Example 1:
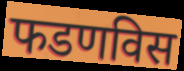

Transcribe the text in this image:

फडणविस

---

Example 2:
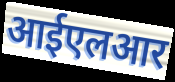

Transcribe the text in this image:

आईएलआर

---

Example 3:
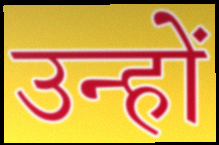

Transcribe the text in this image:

उन्हों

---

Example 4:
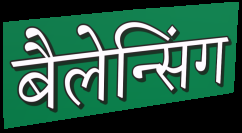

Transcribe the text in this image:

बैलेन्सिंग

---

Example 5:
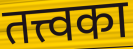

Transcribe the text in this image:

तत्त्वका